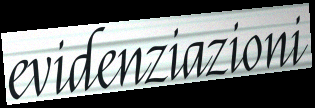
evidenziazioni